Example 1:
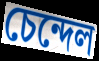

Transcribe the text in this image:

চেন্দেল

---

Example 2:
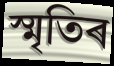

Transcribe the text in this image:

স্মৃতিৰ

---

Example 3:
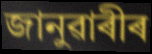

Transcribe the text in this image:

জানুৱাৰীৰ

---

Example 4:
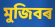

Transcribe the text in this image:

মুজিবৰ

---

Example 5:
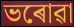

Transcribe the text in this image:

ভৰোৱা